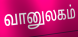
வானுலகம்